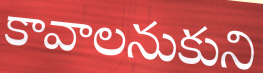
కావాలనుకుని